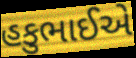
હકુભાઈએ